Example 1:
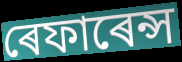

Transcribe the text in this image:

ৰেফাৰেন্স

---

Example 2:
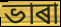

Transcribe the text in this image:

ভাৰা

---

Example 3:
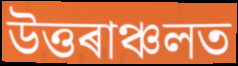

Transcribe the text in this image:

উত্তৰাঞ্চলত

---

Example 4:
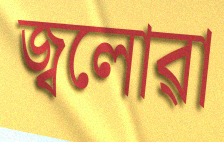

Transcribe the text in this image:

জ্বলোৱা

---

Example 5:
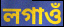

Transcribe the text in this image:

লগাওঁ